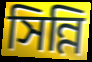
সিন্নি